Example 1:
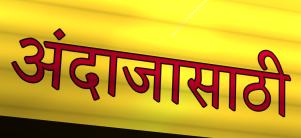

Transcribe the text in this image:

अंदाजासाठी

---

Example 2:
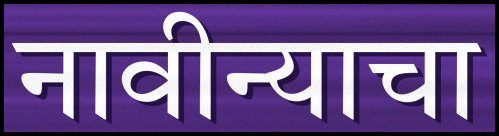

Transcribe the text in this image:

नावीन्याचा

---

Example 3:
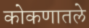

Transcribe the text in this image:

कोकणातले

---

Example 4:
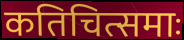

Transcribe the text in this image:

कतिचित्समाः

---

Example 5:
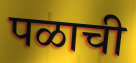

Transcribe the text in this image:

पळाची